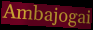
Ambajogai